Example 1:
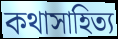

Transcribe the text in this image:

কথাসাহিত্য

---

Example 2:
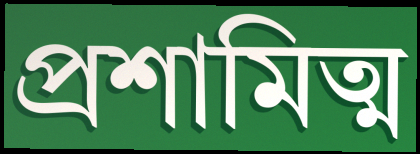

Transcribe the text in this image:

প্রশামিত্ম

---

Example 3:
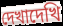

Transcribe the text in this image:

দেখাদেখি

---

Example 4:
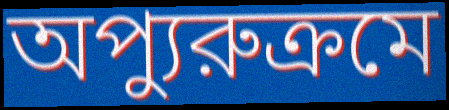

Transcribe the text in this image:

অপ্যুরুক্রমে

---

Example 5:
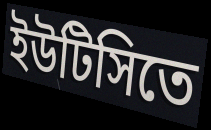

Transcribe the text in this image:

ইউটিসিতে